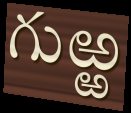
గుఱ్ఱ